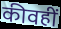
कीवहीं